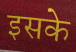
इसके